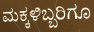
ಮಕ್ಕಳಿಬ್ಬರಿಗೂ